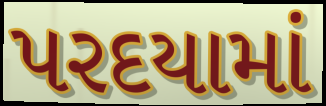
પરદયામાં